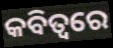
କବିତ୍ୱରେ